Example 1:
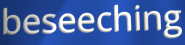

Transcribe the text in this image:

beseeching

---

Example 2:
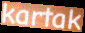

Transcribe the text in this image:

kartak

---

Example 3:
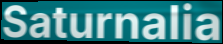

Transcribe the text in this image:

Saturnalia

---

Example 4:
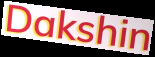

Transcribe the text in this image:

Dakshin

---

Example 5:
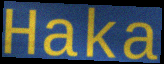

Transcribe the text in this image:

Haka